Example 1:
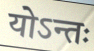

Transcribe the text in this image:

योऽन्तः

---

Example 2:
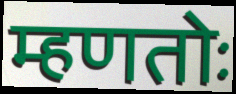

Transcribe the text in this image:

म्हणतोः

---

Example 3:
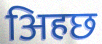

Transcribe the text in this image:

अिहछ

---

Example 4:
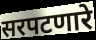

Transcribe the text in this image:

सरपटणारे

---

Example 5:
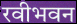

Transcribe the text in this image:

रवीभवन